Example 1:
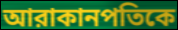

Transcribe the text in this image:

আরাকানপতিকে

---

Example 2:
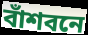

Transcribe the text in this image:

বাঁশবনে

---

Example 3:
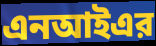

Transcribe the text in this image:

এনআইএর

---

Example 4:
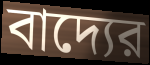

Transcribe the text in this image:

বাদ্যের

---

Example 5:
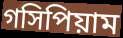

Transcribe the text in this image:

গসিপিয়াম